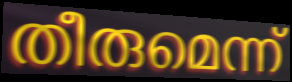
തീരുമെന്ന്